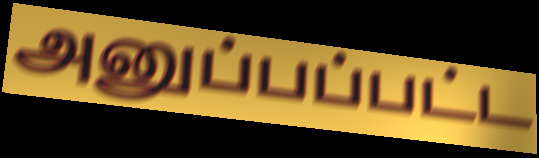
அனுப்பப்பட்ட